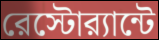
রেস্টোর‍্যান্টে